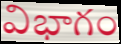
విభాగం